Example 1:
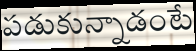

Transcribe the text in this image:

పడుకున్నాడంటే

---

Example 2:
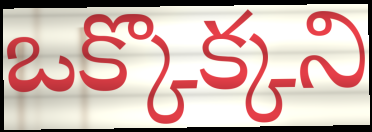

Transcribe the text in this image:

ఒక్కొక్కని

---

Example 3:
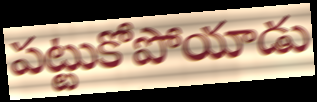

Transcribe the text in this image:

పట్టుకోపోయాడు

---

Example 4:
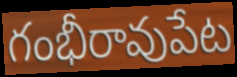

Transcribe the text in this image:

గంభీరావుపేట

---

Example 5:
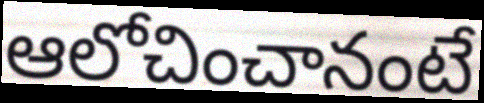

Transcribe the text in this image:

ఆలోచించానంటే